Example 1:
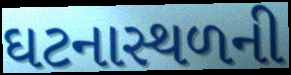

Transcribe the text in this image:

ઘટનાસ્થળની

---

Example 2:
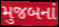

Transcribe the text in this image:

મુજબનાં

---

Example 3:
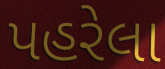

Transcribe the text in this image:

પહરેલા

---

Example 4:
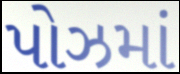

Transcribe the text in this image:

પોઝમાં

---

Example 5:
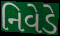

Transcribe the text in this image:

નિવેડે